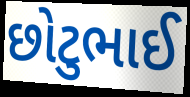
છોટુભાઈ